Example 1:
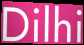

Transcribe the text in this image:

Dilhi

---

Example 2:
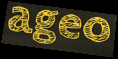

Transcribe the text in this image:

ageo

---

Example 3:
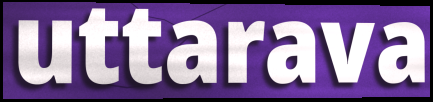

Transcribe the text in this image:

uttarava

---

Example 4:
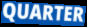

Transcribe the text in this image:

QUARTER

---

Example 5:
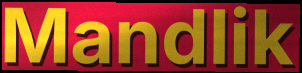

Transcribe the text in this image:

Mandlik